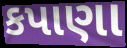
કપાણા